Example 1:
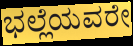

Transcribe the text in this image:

ಭಲ್ಲೆಯವರೇ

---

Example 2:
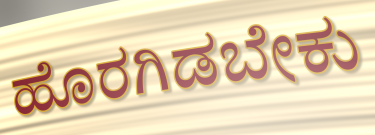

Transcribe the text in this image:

ಹೊರಗಿಡಬೇಕು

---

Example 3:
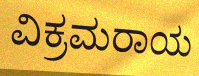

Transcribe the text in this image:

ವಿಕ್ರಮರಾಯ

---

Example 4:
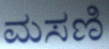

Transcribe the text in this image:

ಮಸಣಿ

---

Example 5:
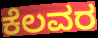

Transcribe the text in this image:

ಕೆಲವರ